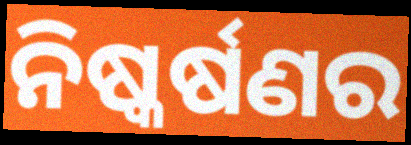
ନିଷ୍କର୍ଷଣର